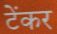
टेंकर